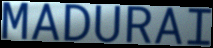
MADURAI